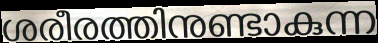
ശരീരത്തിനുണ്ടാകുന്ന